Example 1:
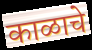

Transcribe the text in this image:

काळाचे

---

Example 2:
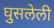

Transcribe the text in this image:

घुसलेली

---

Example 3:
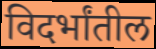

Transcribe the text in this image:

विदर्भांतील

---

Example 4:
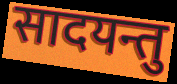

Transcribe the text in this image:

सादयन्तु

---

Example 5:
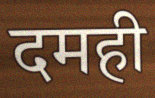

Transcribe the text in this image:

दमही